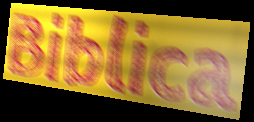
Biblica